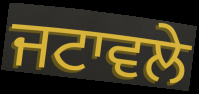
ਜਟਾਵਲੇ